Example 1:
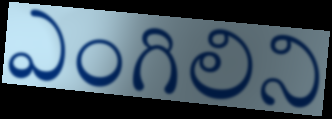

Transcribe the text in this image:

ఎంగిలిని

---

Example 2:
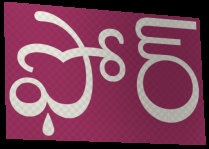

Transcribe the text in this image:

ఫోర్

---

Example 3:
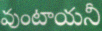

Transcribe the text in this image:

వుంటాయనీ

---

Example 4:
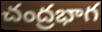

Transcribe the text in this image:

చంద్రభాగ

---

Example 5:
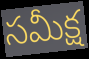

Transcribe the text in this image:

సమీక్ష